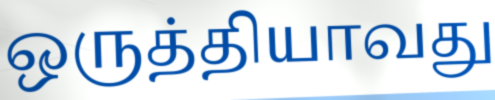
ஒருத்தியாவது